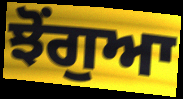
ਝੋਂਗੁਆ